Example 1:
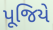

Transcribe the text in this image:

પૂજિયે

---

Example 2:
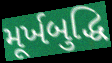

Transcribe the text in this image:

મૂર્ખબુદ્ધિ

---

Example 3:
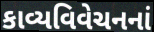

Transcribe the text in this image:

કાવ્યવિવેચનનાં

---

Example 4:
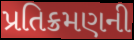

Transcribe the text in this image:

પ્રતિક્રમણની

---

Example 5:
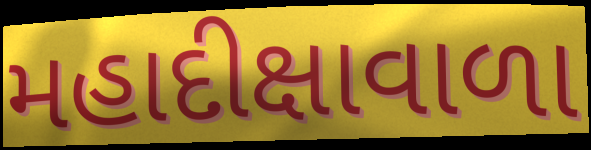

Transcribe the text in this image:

મહાદીક્ષાવાળા